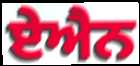
ਏਐਨ